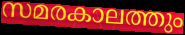
സമരകാലത്തും